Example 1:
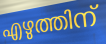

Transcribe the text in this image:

എഴുത്തിന്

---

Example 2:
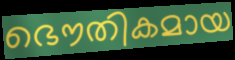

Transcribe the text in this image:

ഭൌതികമായ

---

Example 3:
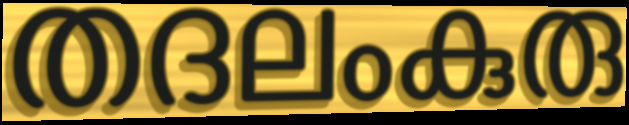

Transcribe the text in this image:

തദലംകുരു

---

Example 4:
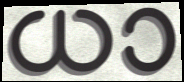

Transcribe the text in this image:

ധാ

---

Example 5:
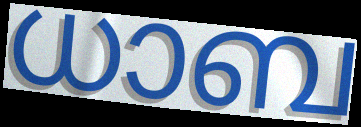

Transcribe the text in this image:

ധാബ